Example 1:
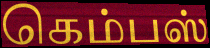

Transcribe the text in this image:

கெம்பஸ்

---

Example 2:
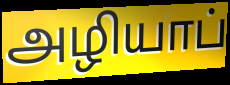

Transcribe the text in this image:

அழியாப்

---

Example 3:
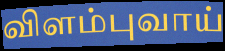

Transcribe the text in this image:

விளம்புவாய்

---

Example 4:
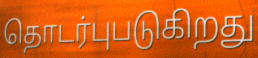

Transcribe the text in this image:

தொடர்புபடுகிறது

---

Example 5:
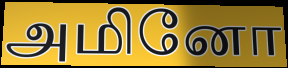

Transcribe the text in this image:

அமினோ